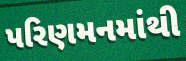
પરિણમનમાંથી